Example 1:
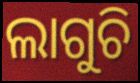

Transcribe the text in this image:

ଲାଗୁଚି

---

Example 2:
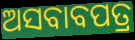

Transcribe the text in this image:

ଅସବାବପତ୍ର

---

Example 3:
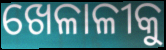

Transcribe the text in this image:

ଖେଳାଳୀକୁ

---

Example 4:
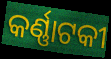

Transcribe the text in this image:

କର୍ଣ୍ଣାଟକୀ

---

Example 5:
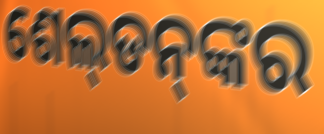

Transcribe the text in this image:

ଶେଲ୍‌ଡନ୍‌ଙ୍କର